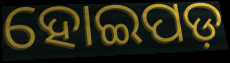
ହୋଇପଡ଼